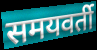
समयवर्ती